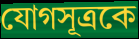
যোগসূত্রকে